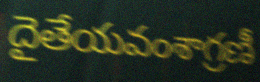
దైతేయవంశాగ్రణీ